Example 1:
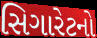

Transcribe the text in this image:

સિગારેટનો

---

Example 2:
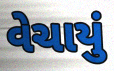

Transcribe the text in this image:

વેચાયું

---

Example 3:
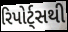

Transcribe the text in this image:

રિપોર્ટ્સથી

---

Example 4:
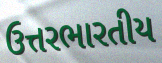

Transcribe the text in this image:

ઉત્તરભારતીય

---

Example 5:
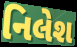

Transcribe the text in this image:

નિલેશ